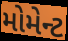
મોમેન્ટ